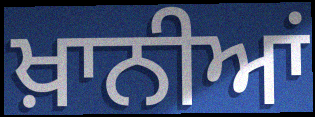
ਖ਼ਾਨੀਆਂ